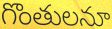
గొంతులనూ